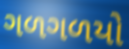
ગળગળયો